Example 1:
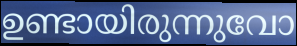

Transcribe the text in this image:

ഉണ്ടായിരുന്നുവോ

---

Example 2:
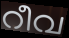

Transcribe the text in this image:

റീവ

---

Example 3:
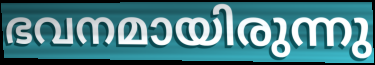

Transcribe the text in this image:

ഭവനമായിരുന്നു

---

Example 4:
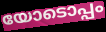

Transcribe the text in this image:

യോടൊപ്പം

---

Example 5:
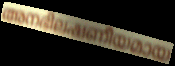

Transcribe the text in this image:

അനഭിലഷണീയമായ